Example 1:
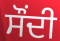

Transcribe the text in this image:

ਸੌਂਦੀ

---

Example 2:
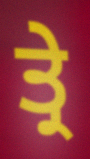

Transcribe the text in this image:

ਤ੍ਰੇ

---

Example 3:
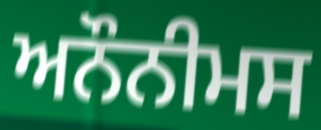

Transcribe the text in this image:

ਅਨੌਨੀਮਸ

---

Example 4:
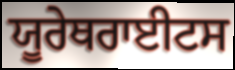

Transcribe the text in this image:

ਯੂਰੇਥਰਾਈਟਸ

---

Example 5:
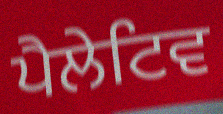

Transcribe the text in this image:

ਪੈਲੇਟਿਵ